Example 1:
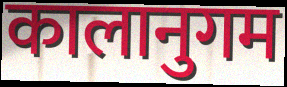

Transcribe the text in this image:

कालानुगम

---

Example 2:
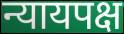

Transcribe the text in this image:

न्यायपक्ष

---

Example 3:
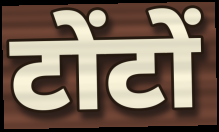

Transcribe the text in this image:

टोंटों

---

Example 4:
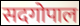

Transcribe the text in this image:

सदगोपाल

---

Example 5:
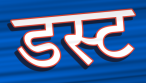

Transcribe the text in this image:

डस्ट